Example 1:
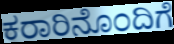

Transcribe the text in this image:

ಕರಾರಿನೊಂದಿಗೆ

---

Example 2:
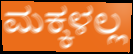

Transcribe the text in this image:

ಮಕ್ಕಳಲ್ಲ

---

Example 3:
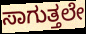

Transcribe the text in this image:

ಸಾಗುತ್ತಲೇ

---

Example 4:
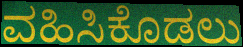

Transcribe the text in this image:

ವಹಿಸಿಕೊಡಲು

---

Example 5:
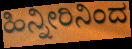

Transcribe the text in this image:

ಹಿನ್ನೀರಿನಿಂದ